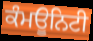
ਕੰਮਊਨਿਟੀ